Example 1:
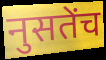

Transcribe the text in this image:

नुसतेंच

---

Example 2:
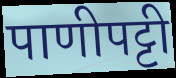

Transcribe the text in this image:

पाणीपट्टी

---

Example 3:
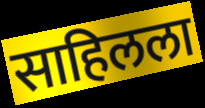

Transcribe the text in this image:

साहिलला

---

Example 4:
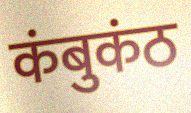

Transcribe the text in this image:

कंबुकंठ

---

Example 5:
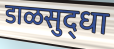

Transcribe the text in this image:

डाळसुद्धा